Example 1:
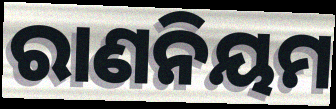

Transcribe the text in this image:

ରାଣନିୟମ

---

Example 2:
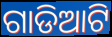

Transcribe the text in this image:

ଗାଡିଆଟି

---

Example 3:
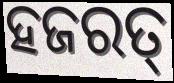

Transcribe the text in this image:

ହଜରତ୍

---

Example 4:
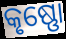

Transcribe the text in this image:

କୃଷ୍ଣୋ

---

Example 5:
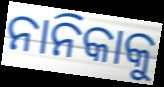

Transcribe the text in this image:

ନାନିକାକୁ